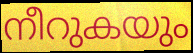
നീറുകയും